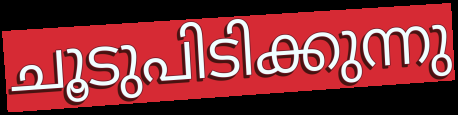
ചൂടുപിടിക്കുന്നു